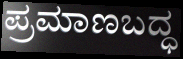
ಪ್ರಮಾಣಬದ್ಧ